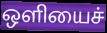
ஒளியைச்